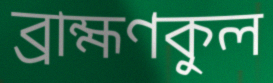
ব্রাহ্মণকুল